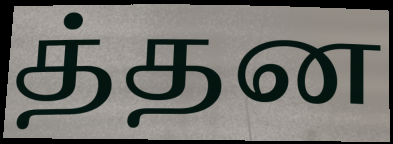
த்தன